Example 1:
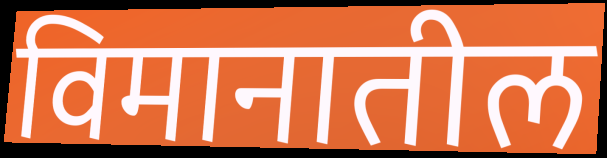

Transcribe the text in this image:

विमानातील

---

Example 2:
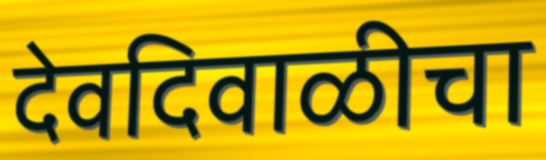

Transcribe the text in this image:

देवदिवाळीचा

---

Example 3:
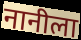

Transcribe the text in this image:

नानीला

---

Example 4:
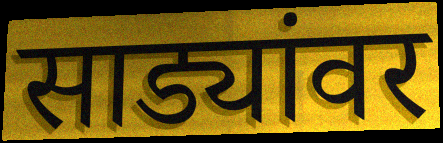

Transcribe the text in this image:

साड्यांवर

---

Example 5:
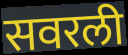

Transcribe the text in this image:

सवरली